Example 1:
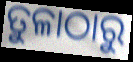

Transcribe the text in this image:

ତୁଳାଠାରୁ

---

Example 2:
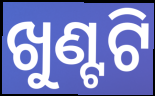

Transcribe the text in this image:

ଖୁଣ୍ଟଟି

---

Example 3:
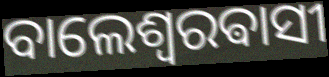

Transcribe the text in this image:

ବାଲେଶ୍ଵରଵାସୀ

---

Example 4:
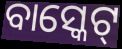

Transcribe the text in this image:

ବାସ୍କେଟ୍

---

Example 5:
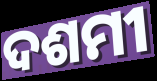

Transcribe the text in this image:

ଦଶମୀ